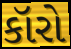
કૉરો